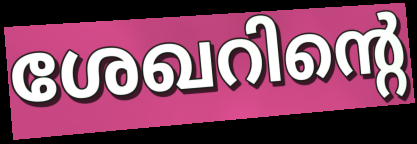
ശേഖറിന്റെ